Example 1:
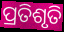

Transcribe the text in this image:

ପ୍ରତିଶୃତି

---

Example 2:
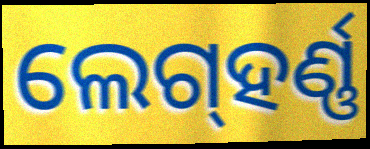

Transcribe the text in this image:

ଲେଗ୍‌ହର୍ଣ୍ଣ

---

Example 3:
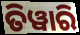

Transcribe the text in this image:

ତିୱାରି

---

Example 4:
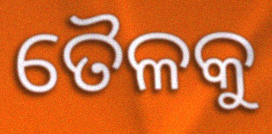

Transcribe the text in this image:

ତୈଳକୁ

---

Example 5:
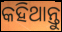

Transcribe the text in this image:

କହିଥାନ୍ତୁ